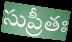
సుప్రీతః